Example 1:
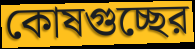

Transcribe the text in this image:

কোষগুচ্ছের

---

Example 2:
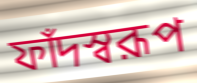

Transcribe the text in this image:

ফাঁদস্বরূপ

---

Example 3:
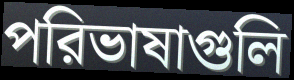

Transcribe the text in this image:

পরিভাষাগুলি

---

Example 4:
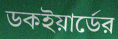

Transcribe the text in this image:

ডকইয়ার্ডের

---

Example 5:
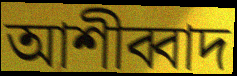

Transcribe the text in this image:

আশীব্বাদ